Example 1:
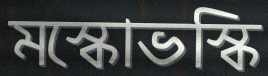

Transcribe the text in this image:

মস্কোভস্কি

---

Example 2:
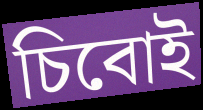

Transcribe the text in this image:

চিবোই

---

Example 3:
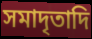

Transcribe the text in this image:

সমাদৃতাদি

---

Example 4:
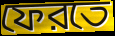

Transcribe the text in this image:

ফেরতে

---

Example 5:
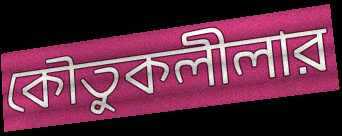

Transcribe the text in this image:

কৌতুকলীলার